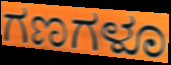
ಗಣಗಳೂ